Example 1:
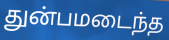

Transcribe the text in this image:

துன்பமடைந்த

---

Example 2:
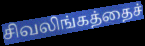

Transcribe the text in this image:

சிவலிங்கத்தைச்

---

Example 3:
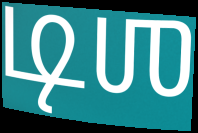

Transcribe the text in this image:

டிஶ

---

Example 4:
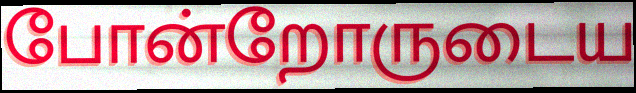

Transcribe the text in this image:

போன்றோருடைய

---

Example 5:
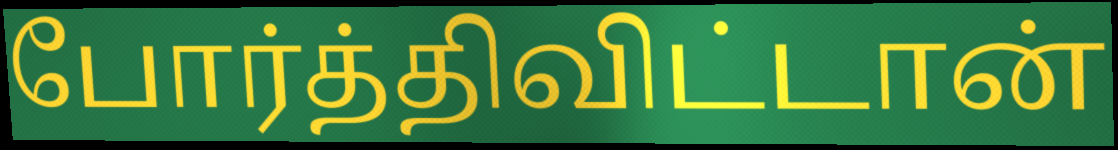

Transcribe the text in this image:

போர்த்திவிட்டான்